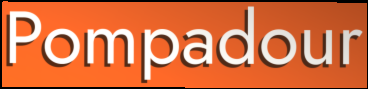
Pompadour